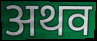
अथव